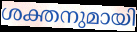
ശക്തനുമായി